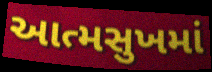
આત્મસુખમાં